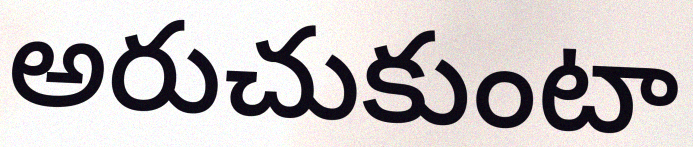
అరుచుకుంటా